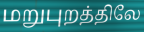
மறுபுறத்திலே